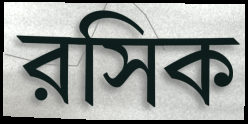
রসিক